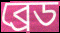
ব্রেড